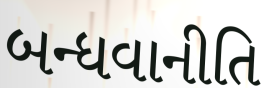
બન્ધવાનીતિ